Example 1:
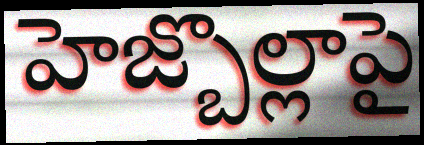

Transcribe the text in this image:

హెజ్బొల్లాపై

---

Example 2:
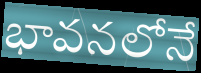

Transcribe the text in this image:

భావనలోనే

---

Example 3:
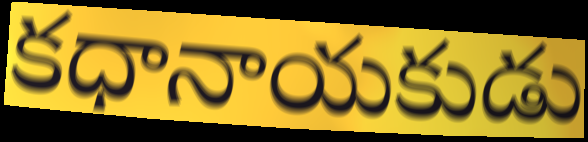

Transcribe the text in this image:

కధానాయకుడు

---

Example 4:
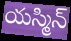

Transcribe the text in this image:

యస్మిన్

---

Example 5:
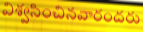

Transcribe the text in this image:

విశ్వసించినవారందరు